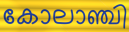
കോലാഞ്ചി